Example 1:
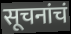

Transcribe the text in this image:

सूचनांचं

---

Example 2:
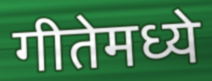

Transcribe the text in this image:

गीतेमध्ये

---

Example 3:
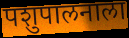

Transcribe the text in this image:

पशुपालनाला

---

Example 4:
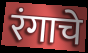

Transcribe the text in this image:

रंगाचे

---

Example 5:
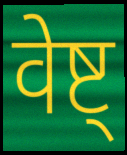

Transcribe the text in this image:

वेष्ट्